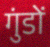
गुंडों